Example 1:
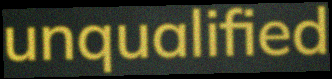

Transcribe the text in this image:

unqualified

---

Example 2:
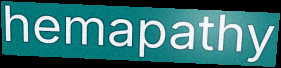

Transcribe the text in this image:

hemapathy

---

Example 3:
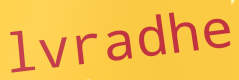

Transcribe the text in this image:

lvradhe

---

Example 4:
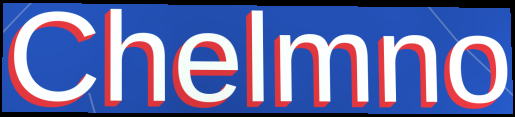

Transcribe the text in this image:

Chelmno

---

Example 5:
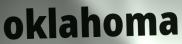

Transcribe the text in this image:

oklahoma